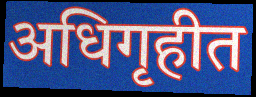
अधिगृहीत